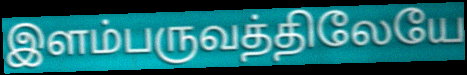
இளம்பருவத்திலேயே